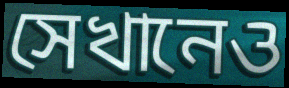
সেখানেও